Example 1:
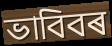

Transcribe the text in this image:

ভাবিবৰ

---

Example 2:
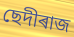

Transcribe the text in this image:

ছেদীৰাজ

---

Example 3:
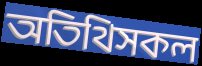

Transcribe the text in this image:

অতিথিসকল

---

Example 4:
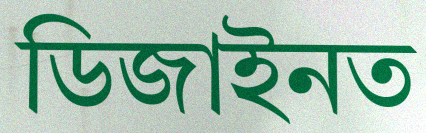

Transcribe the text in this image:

ডিজাইনত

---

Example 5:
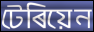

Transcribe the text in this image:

টেৰিয়েন